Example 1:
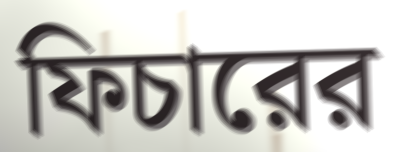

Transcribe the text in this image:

ফিচারের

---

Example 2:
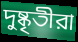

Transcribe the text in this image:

দুষ্কৃতীরা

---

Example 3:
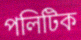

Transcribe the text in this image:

পলিটিক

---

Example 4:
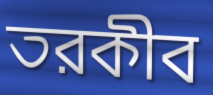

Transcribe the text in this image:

তরকীব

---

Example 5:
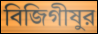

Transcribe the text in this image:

বিজিগীষুর